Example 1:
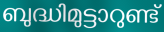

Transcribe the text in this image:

ബുദ്ധിമുട്ടാറുണ്ട്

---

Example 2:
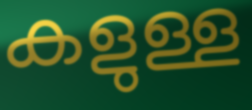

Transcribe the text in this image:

കളുള്ള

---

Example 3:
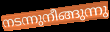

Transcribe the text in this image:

നടന്നുനീങ്ങുന്നു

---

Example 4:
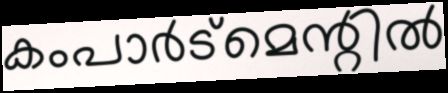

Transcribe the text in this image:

കംപാർട്മെന്റിൽ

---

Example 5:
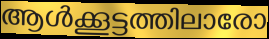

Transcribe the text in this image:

ആൾക്കൂട്ടത്തിലാരോ